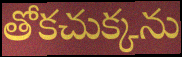
తోకచుక్కను